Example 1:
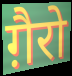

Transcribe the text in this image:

ग़ैरो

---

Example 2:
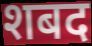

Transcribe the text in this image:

शबद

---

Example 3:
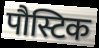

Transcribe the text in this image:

पौस्टिक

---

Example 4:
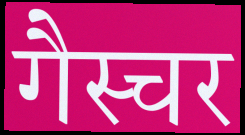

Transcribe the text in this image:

गैस्चर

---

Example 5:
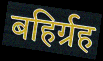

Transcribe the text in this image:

बहिर्ग्रह